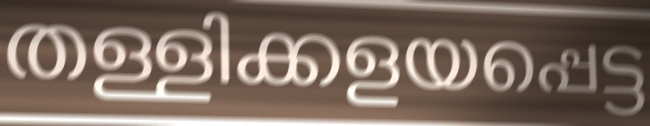
തള്ളിക്കളയപ്പെട്ട